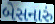
બેસનારું